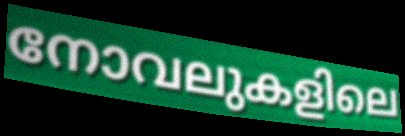
നോവലുകളിലെ